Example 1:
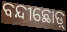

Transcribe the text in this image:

ବନ୍ଦୀଛୋଡ଼୍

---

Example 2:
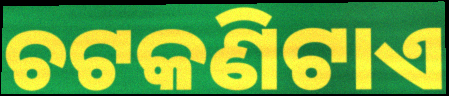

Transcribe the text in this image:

ଚଟକଣିଟାଏ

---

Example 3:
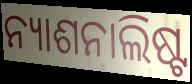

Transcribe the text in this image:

ନ୍ୟାଶନାଲିଷ୍ଟ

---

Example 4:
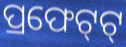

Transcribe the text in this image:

ପ୍ରଫେଟ୍‌ଟ୍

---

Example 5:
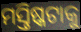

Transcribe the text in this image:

ମସ୍ତିଷ୍କଟାକୁ